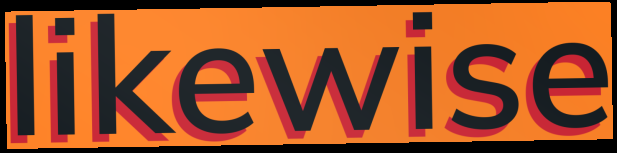
likewise